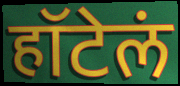
हॉटेलं